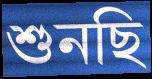
শুনছি